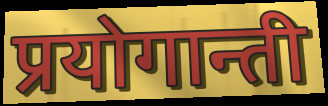
प्रयोगान्ती